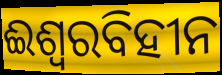
ଈଶ୍ୱରବିହୀନ